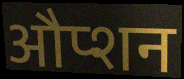
औप्शन